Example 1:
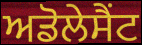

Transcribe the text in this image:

ਅਡੋਲੇਸੈਂਟ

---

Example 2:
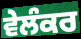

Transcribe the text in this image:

ਵੇਲੰਕਰ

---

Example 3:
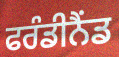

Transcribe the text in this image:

ਫਰੰਡੀਨੈਂਡ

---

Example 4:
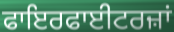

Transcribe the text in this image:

ਫਾਇਰਫਾਈਟਰਜ਼ਾਂ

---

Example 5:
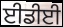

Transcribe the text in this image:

ਈਡੀਈ